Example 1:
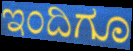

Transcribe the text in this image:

ಇಂದಿಗೂ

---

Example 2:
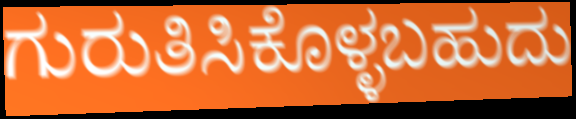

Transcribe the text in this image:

ಗುರುತಿಸಿಕೊಳ್ಳಬಹುದು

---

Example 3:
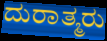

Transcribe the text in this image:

ದುರಾತ್ಮರು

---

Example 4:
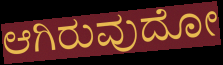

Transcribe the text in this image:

ಆಗಿರುವುದೋ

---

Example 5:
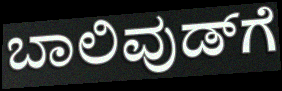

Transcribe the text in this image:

ಬಾಲಿವುಡ್‌ಗೆ